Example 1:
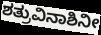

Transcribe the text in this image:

ಶತ್ರುವಿನಾಶಿನೀ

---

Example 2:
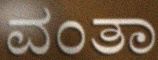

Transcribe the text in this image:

ವಂತಾ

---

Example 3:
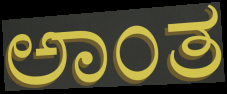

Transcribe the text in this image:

ಅಾಂತ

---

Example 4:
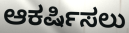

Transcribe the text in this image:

ಆಕರ್ಷಿಸಲು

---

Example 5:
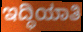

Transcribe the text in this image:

ಇದ್ಧಿಯಾತಿ